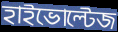
হাইভোল্টেজ